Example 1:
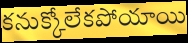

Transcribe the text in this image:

కనుక్కోలేకపోయాయి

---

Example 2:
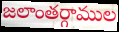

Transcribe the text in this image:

జలాంతర్గాముల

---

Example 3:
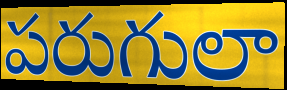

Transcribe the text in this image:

పరుగులా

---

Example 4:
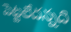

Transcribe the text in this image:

పెట్టలేదన్నది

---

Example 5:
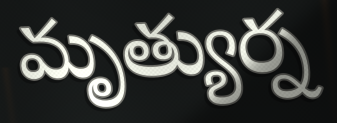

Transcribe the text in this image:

మృత్యుర్న